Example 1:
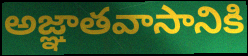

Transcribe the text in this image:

అజ్ఞాతవాసానికి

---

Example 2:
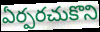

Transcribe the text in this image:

ఏర్పరచుకొని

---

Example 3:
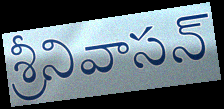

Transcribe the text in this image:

శ్రీనివాసన్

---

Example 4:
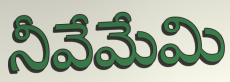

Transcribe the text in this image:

నీవేమేమి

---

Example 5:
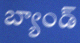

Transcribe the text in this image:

బ్యాండ్